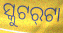
ସ୍କୁଟର୍‌ଟା